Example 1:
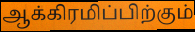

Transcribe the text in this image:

ஆக்கிரமிப்பிற்கும்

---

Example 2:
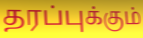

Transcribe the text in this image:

தரப்புக்கும்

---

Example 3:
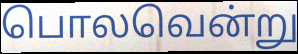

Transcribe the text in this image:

பொலவென்று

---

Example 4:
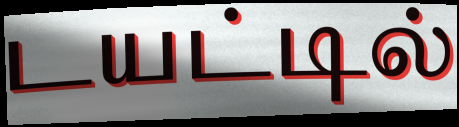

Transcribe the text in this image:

டயட்டில்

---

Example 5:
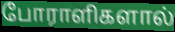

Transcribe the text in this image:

போராளிகளால்